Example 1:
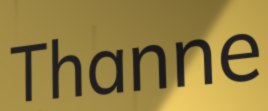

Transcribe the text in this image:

Thanne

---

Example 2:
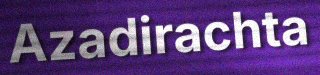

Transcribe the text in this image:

Azadirachta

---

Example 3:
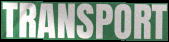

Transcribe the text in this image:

TRANSPORT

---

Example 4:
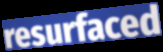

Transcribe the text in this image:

resurfaced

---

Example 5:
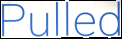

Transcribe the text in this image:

Pulled